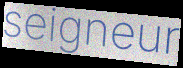
seigneur